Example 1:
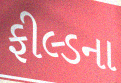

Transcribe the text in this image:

ફીલ્ડના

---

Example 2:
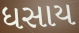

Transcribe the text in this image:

ધસાય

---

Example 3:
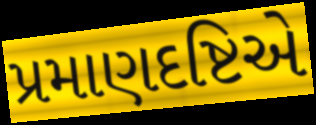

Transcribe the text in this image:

પ્રમાણદષ્ટિએ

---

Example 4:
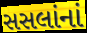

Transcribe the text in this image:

સસલાંનાં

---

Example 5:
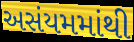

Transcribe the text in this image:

અસંયમમાંથી